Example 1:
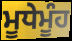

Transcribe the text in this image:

ਮੂਧੇਮੂੰਹ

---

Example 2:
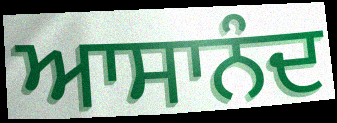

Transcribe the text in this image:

ਆਸਾਨੰਦ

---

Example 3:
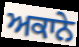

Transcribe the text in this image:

ਅਕਾਨੇ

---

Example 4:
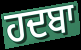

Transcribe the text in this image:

ਹਦਬਾ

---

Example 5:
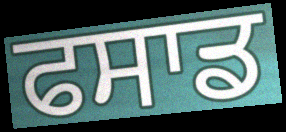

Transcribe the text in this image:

ਫਸਾਡ